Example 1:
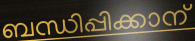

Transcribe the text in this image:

ബന്ധിപ്പിക്കാന്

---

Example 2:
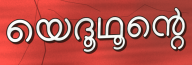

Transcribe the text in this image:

യെദൂഥൂന്റെ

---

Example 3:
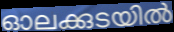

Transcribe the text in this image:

ഓലക്കുടയിൽ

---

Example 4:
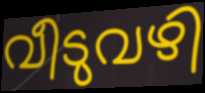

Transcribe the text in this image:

വീടുവഴി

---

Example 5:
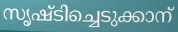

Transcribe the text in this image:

സൃഷ്ടിച്ചെടുക്കാന്